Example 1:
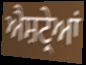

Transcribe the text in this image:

ਐਸ਼ਟ੍ਰੇਆਂ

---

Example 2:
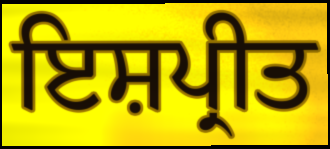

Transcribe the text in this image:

ਇਸ਼ਪ੍ਰੀਤ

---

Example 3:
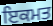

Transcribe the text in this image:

ਇਕਮਤ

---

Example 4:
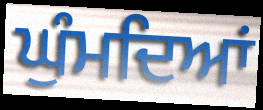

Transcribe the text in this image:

ਘੁੰਮਦਿਆਂ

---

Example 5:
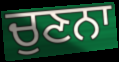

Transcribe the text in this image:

ਚੁਣਨਾ